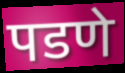
पडणे